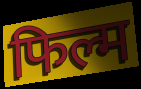
फिल्म